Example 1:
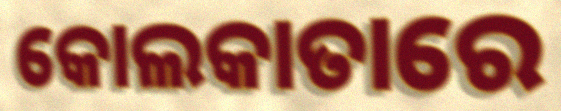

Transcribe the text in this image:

କୋଲକାତାରେ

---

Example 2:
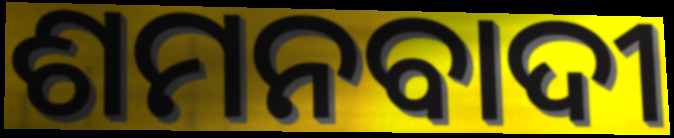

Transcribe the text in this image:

ଶମନବାଦୀ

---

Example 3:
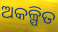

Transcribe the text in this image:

ଅକଳ୍ପିତ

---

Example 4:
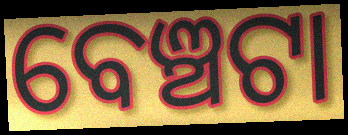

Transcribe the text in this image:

ବେଞ୍ଚଟା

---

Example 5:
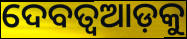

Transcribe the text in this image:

ଦେବତ୍ୱଆଡ଼କୁ